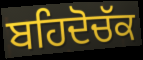
ਬਹਿਦੋਚੱਕ